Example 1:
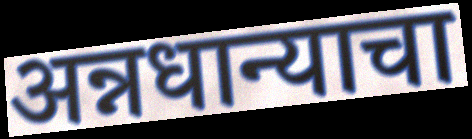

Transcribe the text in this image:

अन्नधान्याचा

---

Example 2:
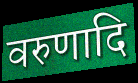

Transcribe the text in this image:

वरुणादि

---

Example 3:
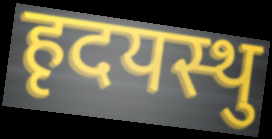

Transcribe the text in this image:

हृदयस्थु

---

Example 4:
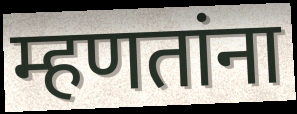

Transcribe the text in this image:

म्हणतांना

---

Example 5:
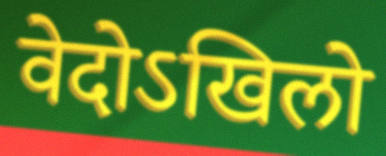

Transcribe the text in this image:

वेदोऽखिलो